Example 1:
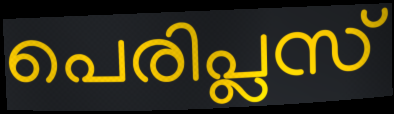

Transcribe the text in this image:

പെരിപ്ലസ്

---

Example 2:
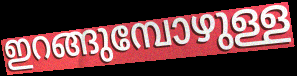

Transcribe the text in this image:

ഇറങ്ങുമ്പോഴുള്ള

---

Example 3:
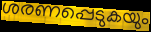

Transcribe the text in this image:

ശരണപ്പെടുകയും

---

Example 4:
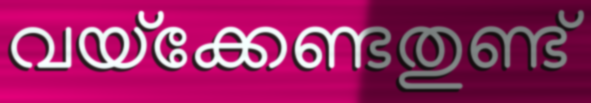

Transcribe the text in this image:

വയ്‌ക്കേണ്ടതുണ്ട്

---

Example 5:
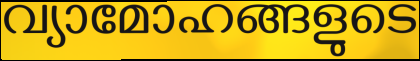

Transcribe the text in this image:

വ്യാമോഹങ്ങളുടെ